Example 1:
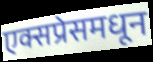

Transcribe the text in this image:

एक्सप्रेसमधून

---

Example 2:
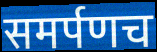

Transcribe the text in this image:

समर्पणच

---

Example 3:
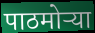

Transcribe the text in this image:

पाठमोऱ्या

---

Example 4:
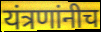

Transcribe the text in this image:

यंत्रणांनीच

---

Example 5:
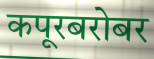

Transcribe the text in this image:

कपूरबरोबर